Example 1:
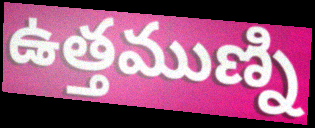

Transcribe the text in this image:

ఉత్తముణ్ని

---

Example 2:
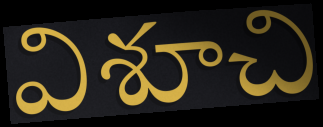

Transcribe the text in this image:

విశూచి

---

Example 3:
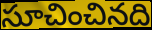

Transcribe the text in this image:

సూచించినది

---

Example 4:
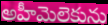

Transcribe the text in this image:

అహీమెలెకును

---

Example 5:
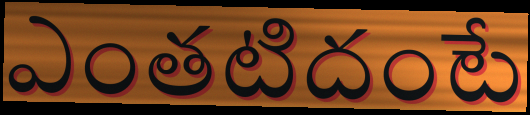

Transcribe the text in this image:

ఎంతటిదంటే